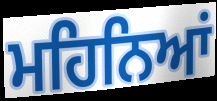
ਮਹਿਨਿਆਂ